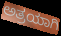
ಅತ್ರಯಾಗಿ